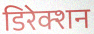
डिरेक्शन